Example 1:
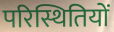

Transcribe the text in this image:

परिस्थितियों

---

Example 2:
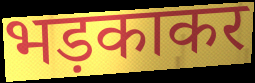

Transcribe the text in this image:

भड़काकर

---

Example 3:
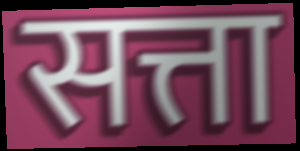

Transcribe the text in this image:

सत्ता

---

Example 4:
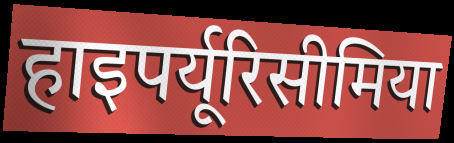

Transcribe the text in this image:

हाइपर्यूरिसीमिया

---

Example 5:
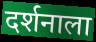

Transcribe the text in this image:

दर्शनाला